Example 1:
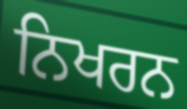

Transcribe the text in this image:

ਨਿਖਰਨ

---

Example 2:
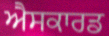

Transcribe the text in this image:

ਐਸਕਾਰਡ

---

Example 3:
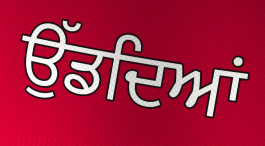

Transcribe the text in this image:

ਉੱਡਦਿਆਂ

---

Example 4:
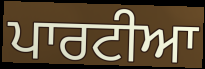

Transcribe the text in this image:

ਪਾਰਟੀਆ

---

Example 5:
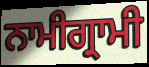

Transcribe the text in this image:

ਨਾਮੀਗ੍ਰਾਮੀ